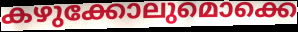
കഴുക്കോലുമൊക്കെ